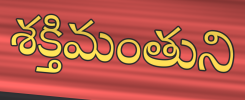
శక్తిమంతుని